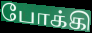
போக்கி